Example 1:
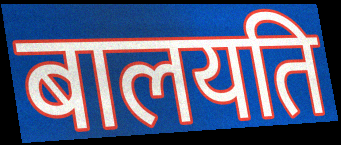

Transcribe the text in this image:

बालयति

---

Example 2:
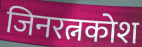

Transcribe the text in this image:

जिनरत्नकोश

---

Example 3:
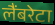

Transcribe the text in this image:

लैंबरेटा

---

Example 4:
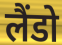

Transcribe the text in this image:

लैंडो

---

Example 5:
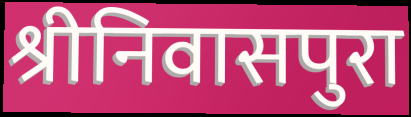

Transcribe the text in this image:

श्रीनिवासपुरा